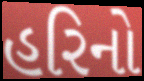
હરિનો